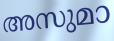
അസുമാ